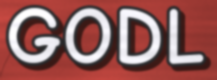
GODL